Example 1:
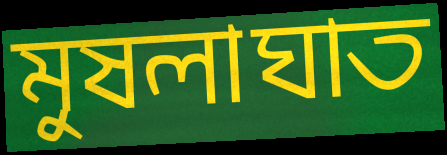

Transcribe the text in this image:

মুষলাঘাত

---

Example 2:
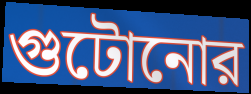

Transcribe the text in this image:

গুটোনোর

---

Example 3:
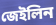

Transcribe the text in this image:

জেইলিন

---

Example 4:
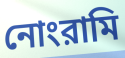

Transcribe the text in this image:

নোংরামি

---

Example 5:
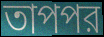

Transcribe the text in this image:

তাপপর